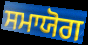
ਸਮਾਯੋਗ